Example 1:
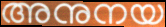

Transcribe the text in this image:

അനുനയ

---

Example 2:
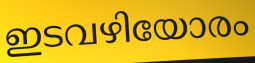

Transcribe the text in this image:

ഇടവഴിയോരം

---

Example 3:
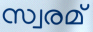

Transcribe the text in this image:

സ്വരമ്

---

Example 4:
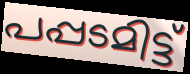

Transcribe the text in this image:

പപ്പടമിട്ട്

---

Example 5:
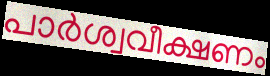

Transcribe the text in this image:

പാർശ്വവീക്ഷണം